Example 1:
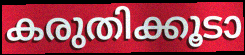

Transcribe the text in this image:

കരുതിക്കൂടാ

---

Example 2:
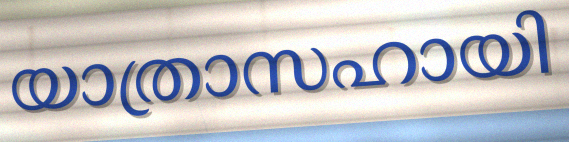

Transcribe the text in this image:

യാത്രാസഹായി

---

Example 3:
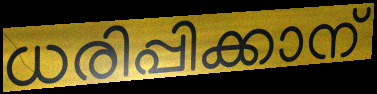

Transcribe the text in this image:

ധരിപ്പിക്കാന്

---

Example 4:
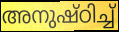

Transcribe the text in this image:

അനുഷ്ഠിച്ച്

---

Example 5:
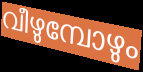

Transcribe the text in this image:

വീഴുമ്പോഴും